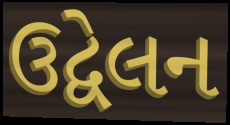
ઉદ્વેલન